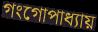
গংগোপাধ্যায়